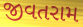
જીવતરામ